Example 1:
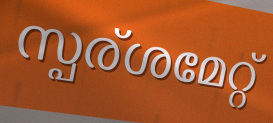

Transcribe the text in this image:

സ്പര്ശമേറ്റ്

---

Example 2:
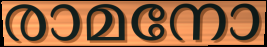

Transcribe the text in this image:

രാമനോ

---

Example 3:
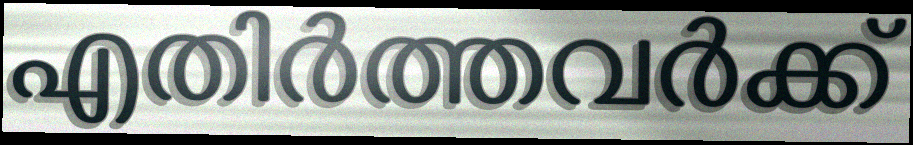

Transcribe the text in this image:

എതിർത്തവർക്ക്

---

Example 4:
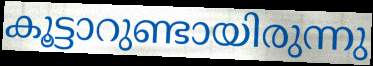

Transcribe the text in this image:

കൂട്ടാറുണ്ടായിരുന്നു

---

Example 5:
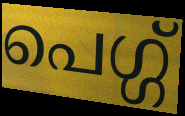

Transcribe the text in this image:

പെഗ്ഗ്